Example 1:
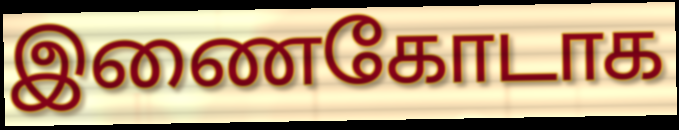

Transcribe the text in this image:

இணைகோடாக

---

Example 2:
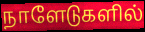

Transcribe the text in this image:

நாளேடுகளில்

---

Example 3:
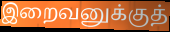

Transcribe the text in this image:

இறைவனுக்குத்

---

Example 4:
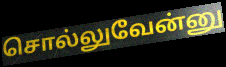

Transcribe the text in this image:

சொல்லுவேன்னு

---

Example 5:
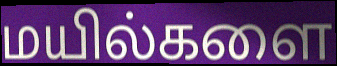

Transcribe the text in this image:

மயில்களை